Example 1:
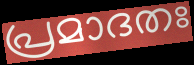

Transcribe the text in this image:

പ്രമാദതഃ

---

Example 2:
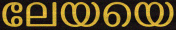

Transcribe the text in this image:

ലേയയെ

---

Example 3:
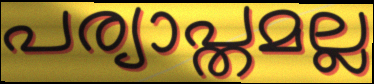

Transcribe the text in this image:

പര്യാപ്തമല്ല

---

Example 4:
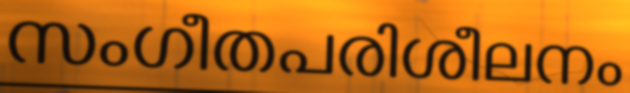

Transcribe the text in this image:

സംഗീതപരിശീലനം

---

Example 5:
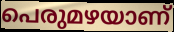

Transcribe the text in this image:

പെരുമഴയാണ്